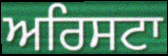
ਅਰਿਸਟਾ